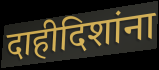
दाहीदिशांना